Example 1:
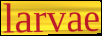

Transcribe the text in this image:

larvae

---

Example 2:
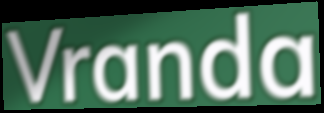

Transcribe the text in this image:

Vranda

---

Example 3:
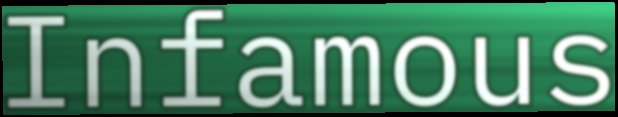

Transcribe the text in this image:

Infamous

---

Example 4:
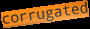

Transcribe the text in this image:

corrugated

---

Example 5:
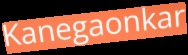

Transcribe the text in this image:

Kanegaonkar